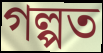
গল্পত